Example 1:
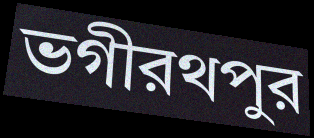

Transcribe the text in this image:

ভগীরথপুর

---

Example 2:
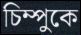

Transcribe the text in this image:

চিম্পুকে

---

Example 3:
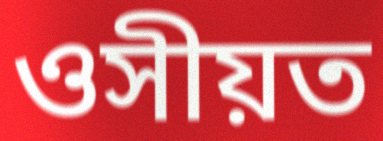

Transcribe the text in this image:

ওসীয়ত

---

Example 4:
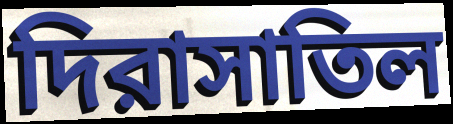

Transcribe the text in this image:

দিরাসাতিল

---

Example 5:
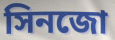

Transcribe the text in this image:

সিনজো